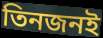
তিনজনই